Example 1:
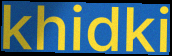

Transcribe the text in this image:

khidki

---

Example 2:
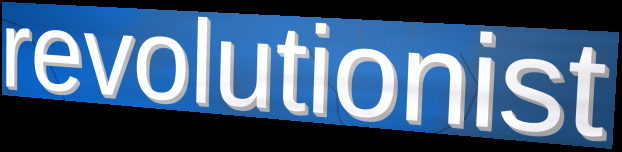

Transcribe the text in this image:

revolutionist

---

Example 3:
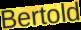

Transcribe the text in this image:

Bertold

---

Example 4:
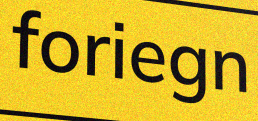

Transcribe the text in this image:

foriegn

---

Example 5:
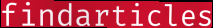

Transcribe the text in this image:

findarticles